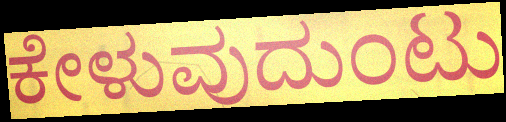
ಕೇಳುವುದುಂಟು